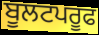
ਬੂਲਟਪਰੂਫ